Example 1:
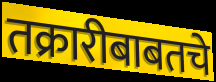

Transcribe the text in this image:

तक्रारीबाबतचे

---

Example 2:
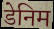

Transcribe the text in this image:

डेनिम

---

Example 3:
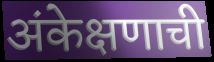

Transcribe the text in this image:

अंकेक्षणाची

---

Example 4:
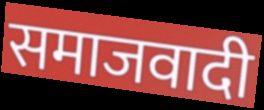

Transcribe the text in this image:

समाजवादी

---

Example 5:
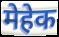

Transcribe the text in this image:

मेहेक